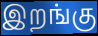
இறங்கு